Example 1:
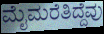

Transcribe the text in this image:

ಮೈಮರೆತಿದ್ದೆವು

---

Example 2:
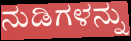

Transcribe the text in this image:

ನುಡಿಗಳನ್ನು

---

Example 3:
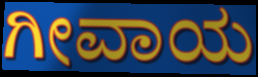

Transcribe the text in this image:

ಗೀವಾಯ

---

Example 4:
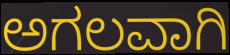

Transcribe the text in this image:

ಅಗಲವಾಗಿ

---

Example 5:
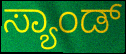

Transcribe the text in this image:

ಸ್ಯಾಂಡ್